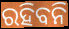
ରହିବନି